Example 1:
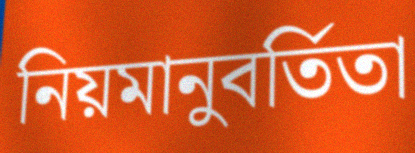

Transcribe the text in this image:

নিয়মানুবর্তিতা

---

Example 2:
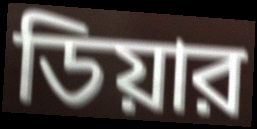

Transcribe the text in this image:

ডিয়ার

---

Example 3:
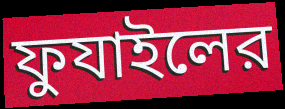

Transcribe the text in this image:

ফুযাইলের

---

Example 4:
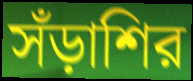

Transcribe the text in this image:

সঁড়াশির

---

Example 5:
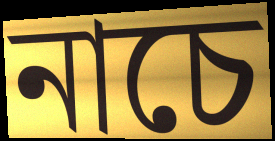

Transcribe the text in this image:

নাচে